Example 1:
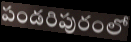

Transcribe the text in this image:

పండరిపురంలో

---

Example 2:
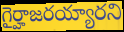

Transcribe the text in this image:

గైర్హాజరయ్యారని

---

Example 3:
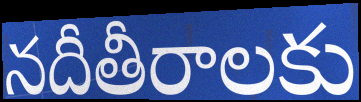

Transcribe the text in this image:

నదీతీరాలకు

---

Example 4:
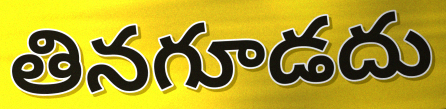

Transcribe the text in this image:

తినగూడదు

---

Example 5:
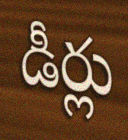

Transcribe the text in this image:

డీర్లు